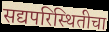
सद्यपरिस्थितीचा